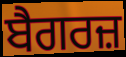
ਬੈਗਰਜ਼